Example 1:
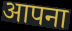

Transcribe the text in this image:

आपना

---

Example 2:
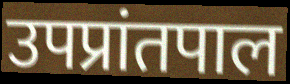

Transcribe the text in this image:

उपप्रांतपाल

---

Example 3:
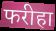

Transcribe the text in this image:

फरीहा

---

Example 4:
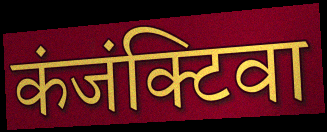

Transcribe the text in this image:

कंजंक्टिवा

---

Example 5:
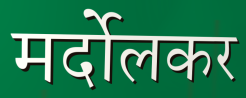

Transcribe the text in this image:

मर्दोलकर